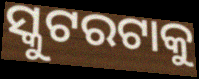
ସ୍କୁଟରଟାକୁ